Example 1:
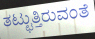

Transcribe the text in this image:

ತಟ್ಟುತ್ತಿರುವಂತೆ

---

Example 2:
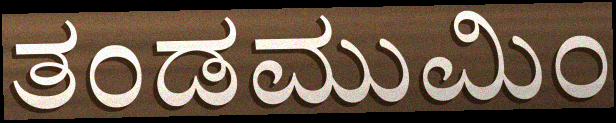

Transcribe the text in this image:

ತಂಡಮುಮಿಂ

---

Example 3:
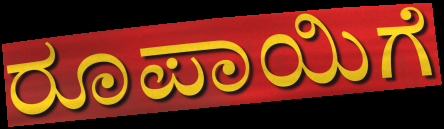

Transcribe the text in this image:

ರೂಪಾಯಿಗೆ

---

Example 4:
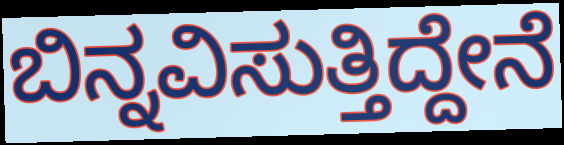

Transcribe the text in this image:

ಬಿನ್ನವಿಸುತ್ತಿದ್ದೇನೆ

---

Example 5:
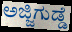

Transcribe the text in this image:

ಅಜ್ಜಿಗುಡ್ಡೆ